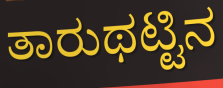
ತಾರುಥಟ್ಟಿನ